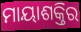
ମାୟାଶକ୍ତିର